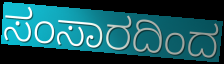
ಸಂಸಾರದಿಂದ